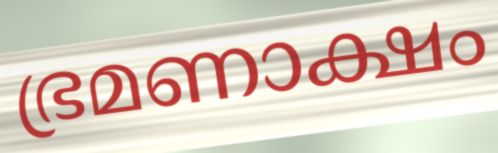
ഭ്രമണാക്ഷം